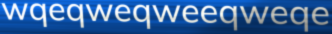
wqeqweqweeqweqe